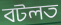
বটলত